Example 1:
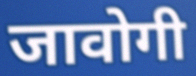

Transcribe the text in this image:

जावोगी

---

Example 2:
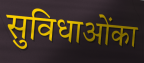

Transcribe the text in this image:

सुविधाओंका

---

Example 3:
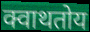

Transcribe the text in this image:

क्वाथतोय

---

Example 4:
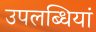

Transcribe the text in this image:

उपलब्धियां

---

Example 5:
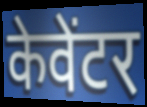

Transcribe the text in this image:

केवेंटर